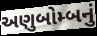
અણુબોમ્બનું